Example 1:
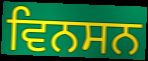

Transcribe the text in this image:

ਵਿਨਸਨ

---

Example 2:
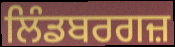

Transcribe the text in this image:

ਲਿੰਡਬਰਗਜ਼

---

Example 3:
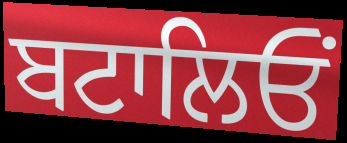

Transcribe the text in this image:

ਬਟਾਲਿਓਂ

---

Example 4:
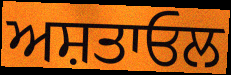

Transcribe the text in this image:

ਅਸ਼ਤਾਓਲ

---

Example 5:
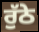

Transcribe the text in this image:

ਰੁੱਠੇ